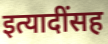
इत्यादींसह